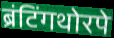
ब्रंटिंगथोरपे